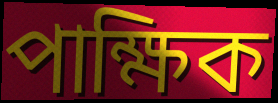
পাক্ষিক